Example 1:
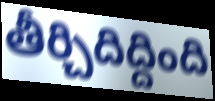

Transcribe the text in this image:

తీర్చిదిద్దింది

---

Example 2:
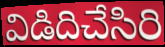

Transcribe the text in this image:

విడిదిచేసిరి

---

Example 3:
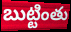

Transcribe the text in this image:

బుట్టింతు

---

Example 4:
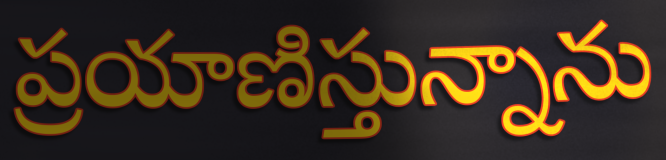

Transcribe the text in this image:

ప్రయాణిస్తున్నాను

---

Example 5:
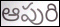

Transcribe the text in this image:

ఆపురి